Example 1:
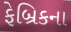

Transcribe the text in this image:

ફેબ્રિકના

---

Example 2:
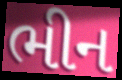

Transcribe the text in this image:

ભીન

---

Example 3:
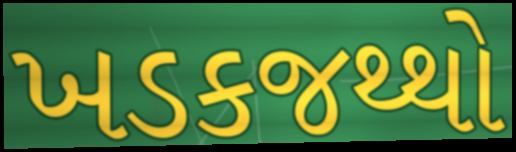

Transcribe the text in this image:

ખડકજથ્થો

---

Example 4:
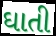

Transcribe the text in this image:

ઘાતી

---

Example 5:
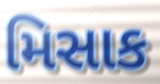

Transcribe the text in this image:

મિસાક